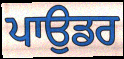
ਪਾਉਡਰ